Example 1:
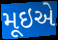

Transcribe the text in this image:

મૂઇએ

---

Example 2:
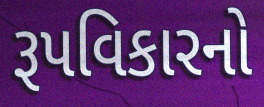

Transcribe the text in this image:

રૂપવિકારનો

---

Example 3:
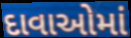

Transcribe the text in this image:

દાવાઓમાં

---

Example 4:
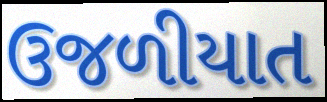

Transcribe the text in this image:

ઉજળીયાત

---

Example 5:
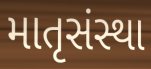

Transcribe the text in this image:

માતૃસંસ્થા